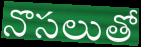
నొసలుతో